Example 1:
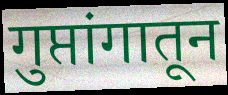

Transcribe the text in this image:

गुप्तांगातून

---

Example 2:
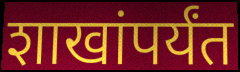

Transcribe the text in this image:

शाखांपर्यंत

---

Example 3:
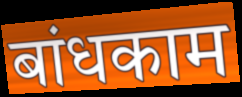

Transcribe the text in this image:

बांधकाम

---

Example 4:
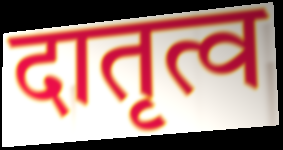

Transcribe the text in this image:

दातृत्व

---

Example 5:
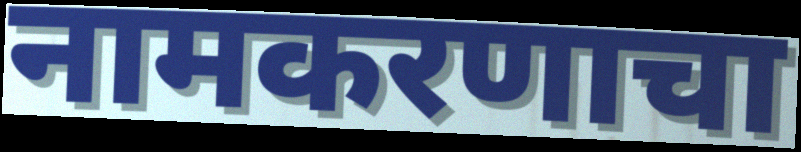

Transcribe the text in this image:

नामकरणाचा